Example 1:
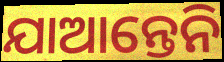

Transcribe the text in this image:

ଯାଆନ୍ତେନି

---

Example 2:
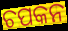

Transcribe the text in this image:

ଚପକନ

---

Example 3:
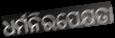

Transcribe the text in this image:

ଧର୍ମନିରପେକ୍ଷତା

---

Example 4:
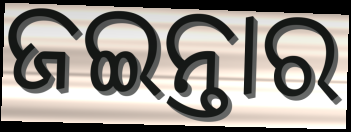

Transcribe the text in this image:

ଜଇନ୍ତାର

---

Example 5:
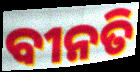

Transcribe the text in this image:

ବୀନତି